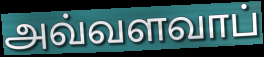
அவ்வளவாப்